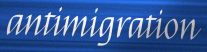
antimigration